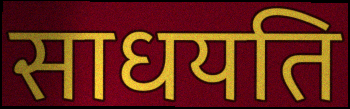
साधयति